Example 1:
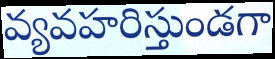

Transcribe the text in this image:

వ్యవహరిస్తుండగా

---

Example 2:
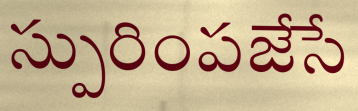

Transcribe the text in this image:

స్పురింపజేసే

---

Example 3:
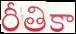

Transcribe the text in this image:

రీతికా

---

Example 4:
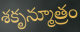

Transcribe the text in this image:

శకృన్మూత్రం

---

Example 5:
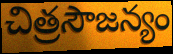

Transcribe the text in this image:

చిత్రసౌజన్యం